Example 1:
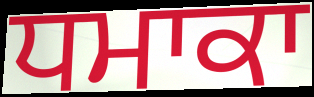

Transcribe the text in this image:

ਧਮਾਕਾ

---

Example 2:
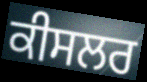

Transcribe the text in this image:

ਕੀਸਲਰ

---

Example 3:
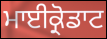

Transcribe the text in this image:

ਮਾਈਕ੍ਰੋਡਾਟ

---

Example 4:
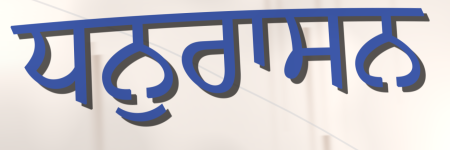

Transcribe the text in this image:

ਧਨੁਰਾਸਨ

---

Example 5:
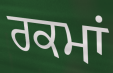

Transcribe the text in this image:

ਰਕਮਾਂ